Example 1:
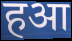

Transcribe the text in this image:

हआ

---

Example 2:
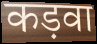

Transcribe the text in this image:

कड़वा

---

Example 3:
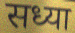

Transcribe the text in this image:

सध्या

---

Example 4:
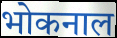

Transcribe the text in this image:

भोकनाल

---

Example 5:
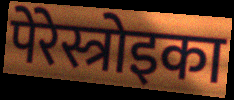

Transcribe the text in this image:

पेरेस्त्रोइका